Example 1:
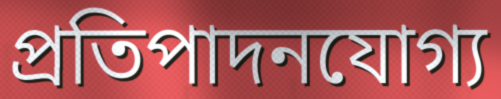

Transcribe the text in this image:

প্রতিপাদনযোগ্য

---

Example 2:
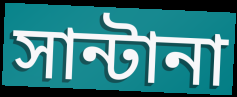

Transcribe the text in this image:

সান্টানা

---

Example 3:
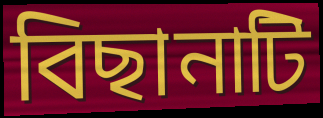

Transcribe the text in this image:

বিছানাটি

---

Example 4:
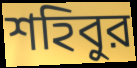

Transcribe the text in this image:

শহিবুর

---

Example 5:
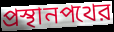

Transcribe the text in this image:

প্রস্থানপথের